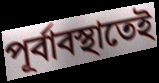
পূর্বাবস্থাতেই